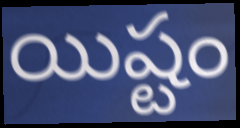
యిష్టం